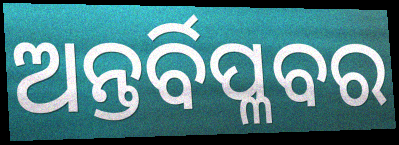
ଅନ୍ତର୍ବିପ୍ଳବର